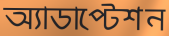
অ্যাডাপ্টেশন